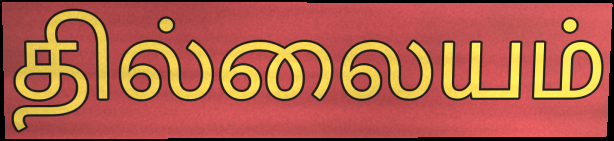
தில்லையம்